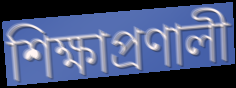
শিক্ষাপ্রণালী